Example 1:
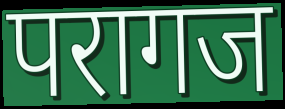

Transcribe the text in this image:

परागज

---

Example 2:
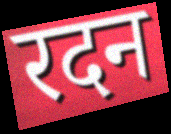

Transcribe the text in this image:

रदन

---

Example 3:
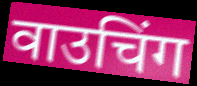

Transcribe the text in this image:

वाउचिंग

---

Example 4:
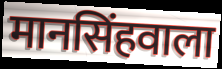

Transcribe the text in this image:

मानसिंहवाला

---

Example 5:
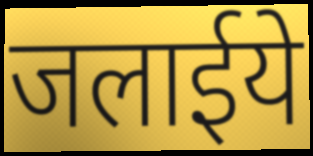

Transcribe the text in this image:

जलाईये